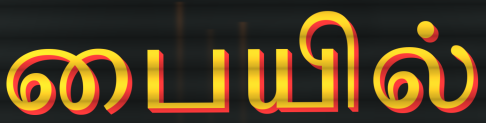
பையில்